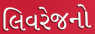
લિવરેજનો